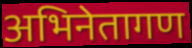
अभिनेतागण